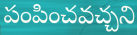
పంపించవచ్చని